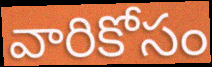
వారికోసం